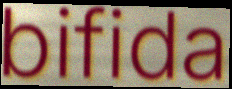
bifida